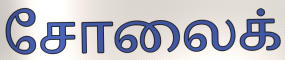
சோலைக்